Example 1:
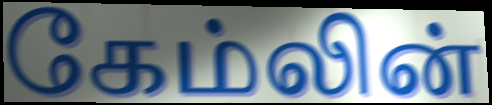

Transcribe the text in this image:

கேம்லின்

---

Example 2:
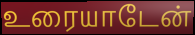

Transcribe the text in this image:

உரையாடேன்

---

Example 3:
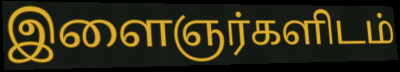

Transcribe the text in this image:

இளைஞர்களிடம்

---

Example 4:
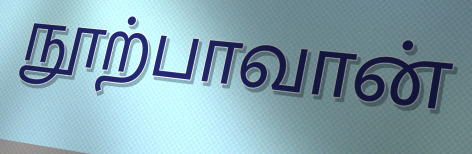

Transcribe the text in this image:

நூற்பாவான்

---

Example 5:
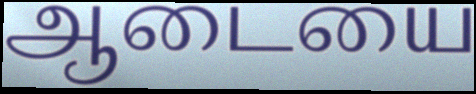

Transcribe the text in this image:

ஆடையை